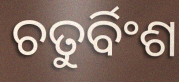
ଚତୁର୍ବିଂଶ